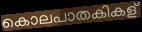
കൊലപാതകികള്